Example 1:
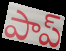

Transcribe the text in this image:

పాప్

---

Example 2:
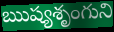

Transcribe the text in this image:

ఋష్యశృంగుని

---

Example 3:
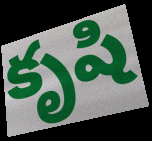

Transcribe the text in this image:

కృషి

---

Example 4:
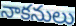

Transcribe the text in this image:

నాకనులు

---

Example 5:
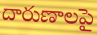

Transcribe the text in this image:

దారుణాలపై